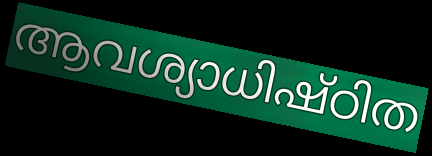
ആവശ്യാധിഷ്ഠിത